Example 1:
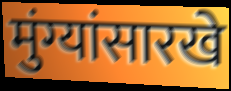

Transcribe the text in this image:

मुंग्यांसारखे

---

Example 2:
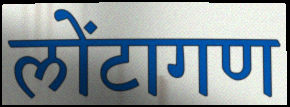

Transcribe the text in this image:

लोंटागण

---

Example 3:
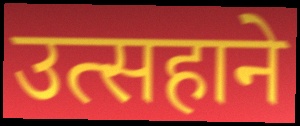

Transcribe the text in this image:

उत्सहाने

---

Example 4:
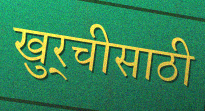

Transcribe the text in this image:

खुर्चीसाठी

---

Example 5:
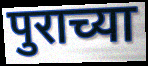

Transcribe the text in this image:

पुराच्या